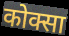
कोक्सा